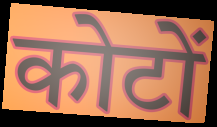
कोटों